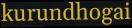
kurundhogai